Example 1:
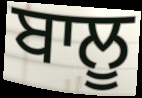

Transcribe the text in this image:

ਬਾਲੂ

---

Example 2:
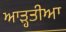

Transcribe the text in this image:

ਆੜ੍ਹਤੀਆ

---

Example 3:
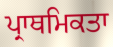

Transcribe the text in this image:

ਪ੍ਰਾਥਮਿਕਤਾ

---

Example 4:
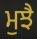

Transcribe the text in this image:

ਮੁਝੈ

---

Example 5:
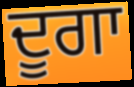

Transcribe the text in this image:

ਦੂਗਾ